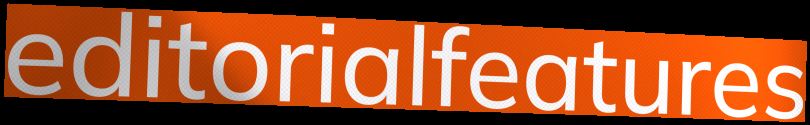
editorialfeatures